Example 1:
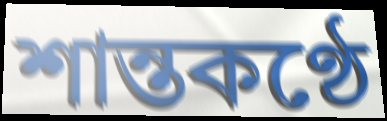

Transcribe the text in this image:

শান্তকণ্ঠে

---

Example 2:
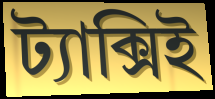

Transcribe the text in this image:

ট্যাক্সিই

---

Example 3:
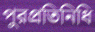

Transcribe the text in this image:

পুরপ্রতিনিধি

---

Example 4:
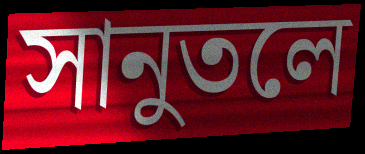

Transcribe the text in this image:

সানুতলে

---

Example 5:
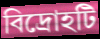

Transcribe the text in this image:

বিদ্রোহটি